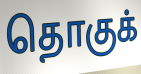
தொகுக்